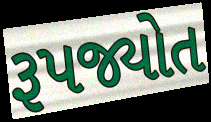
રૂપજ્યોત